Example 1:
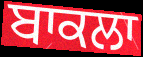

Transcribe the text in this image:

ਬਾਕਲਾ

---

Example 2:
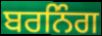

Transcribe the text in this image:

ਬਰਨਿੰਗ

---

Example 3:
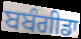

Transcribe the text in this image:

ਬਬੰਗੀਡਾ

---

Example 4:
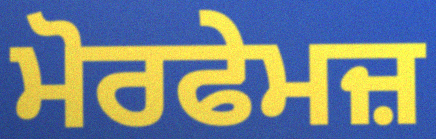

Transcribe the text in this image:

ਮੋਰਫੇਮਜ਼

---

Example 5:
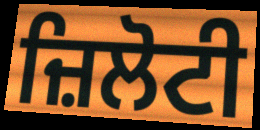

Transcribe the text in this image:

ਜ਼ਿਲੋਟੀ